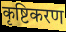
कृष्टिकरण